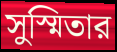
সুস্মিতার